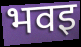
भवइ